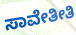
ಸಾವೇತೀತಿ